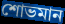
শোভমান